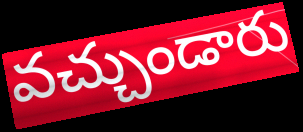
వచ్చుండారు